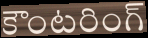
కౌంటరింగ్